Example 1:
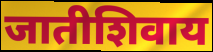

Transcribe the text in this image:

जातीशिवाय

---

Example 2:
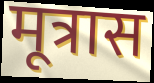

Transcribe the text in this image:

मूत्रास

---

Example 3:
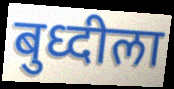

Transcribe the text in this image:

बुध्दीला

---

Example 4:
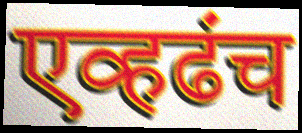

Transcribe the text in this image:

एव्हढंच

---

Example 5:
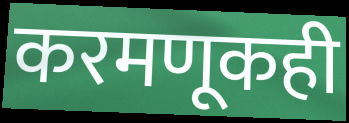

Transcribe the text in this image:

करमणूकही